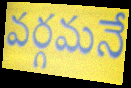
వర్గమనే